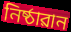
নিষ্ঠাৱান